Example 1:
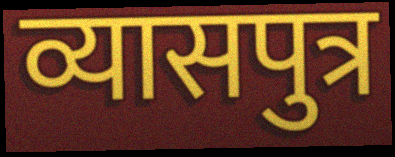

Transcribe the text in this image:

व्यासपुत्र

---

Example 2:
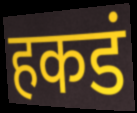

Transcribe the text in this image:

हकडं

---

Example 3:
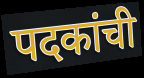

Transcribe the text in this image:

पदकांची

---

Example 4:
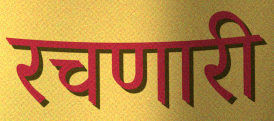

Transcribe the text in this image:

रचणारी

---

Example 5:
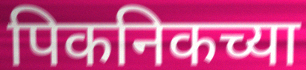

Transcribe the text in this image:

पिकनिकच्या